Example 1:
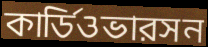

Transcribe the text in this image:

কার্ডিওভারসন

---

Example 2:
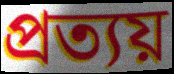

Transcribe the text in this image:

প্রত্যয়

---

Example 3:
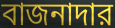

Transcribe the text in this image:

বাজনাদার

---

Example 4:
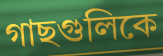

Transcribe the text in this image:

গাছগুলিকে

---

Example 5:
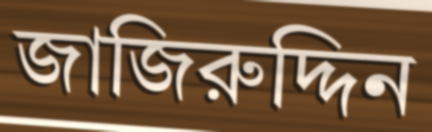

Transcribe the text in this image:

জাজিরুদ্দিন